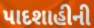
પાદશાહીની